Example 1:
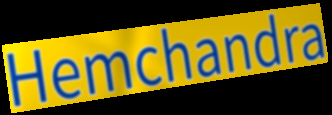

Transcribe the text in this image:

Hemchandra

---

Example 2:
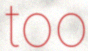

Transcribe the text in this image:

too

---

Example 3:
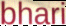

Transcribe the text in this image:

bhari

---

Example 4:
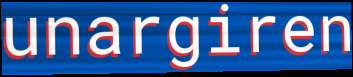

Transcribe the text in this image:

unargiren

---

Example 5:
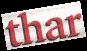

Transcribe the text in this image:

thar